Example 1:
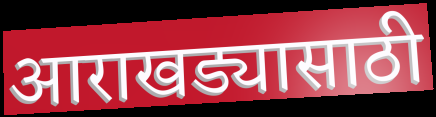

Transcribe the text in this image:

आराखड्यासाठी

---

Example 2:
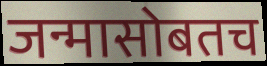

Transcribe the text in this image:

जन्मासोबतच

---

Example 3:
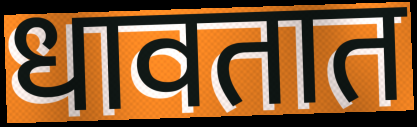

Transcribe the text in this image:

धावतात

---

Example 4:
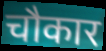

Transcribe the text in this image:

चौकार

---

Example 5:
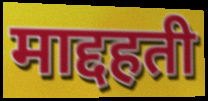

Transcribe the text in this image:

माद्दहती